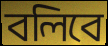
বলিবে